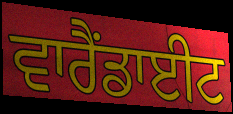
ਵਾਰੈਂਡਾਈਟ